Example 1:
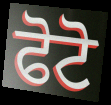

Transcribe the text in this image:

ਫੋਟੋ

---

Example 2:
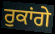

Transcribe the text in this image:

ਰੁਕਾਂਗੇ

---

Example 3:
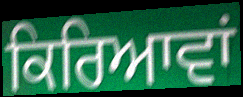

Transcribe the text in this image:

ਕਿਰਿਆਵਾਂ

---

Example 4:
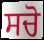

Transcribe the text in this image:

ਸਚੋ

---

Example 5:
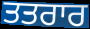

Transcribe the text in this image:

ਤਤਰਾਰ